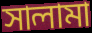
সালামা